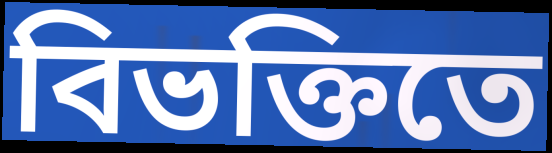
বিভক্তিতে